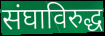
संघाविरुद्ध